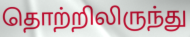
தொற்றிலிருந்து